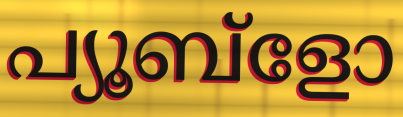
പ്യൂബ്ളോ